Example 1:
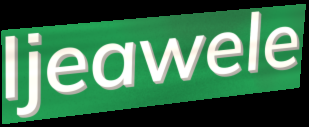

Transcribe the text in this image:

Ijeawele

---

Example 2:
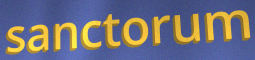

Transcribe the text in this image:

sanctorum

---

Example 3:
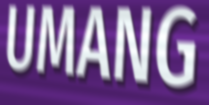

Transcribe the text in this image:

UMANG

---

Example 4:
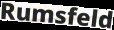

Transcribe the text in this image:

Rumsfeld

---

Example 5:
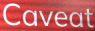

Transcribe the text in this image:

Caveat